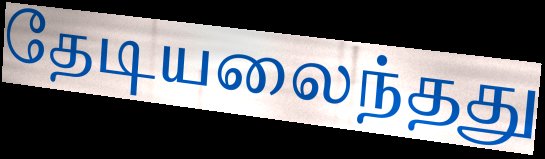
தேடியலைந்தது